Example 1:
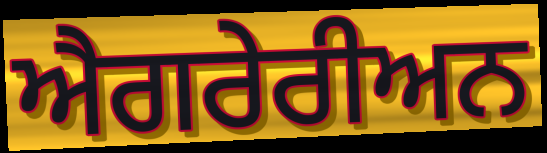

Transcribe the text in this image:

ਐਗਰੇਰੀਅਨ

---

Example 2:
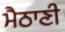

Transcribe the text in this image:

ਮੈਠਾਣੀ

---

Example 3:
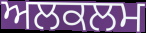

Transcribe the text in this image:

ਅਲਕਲਮ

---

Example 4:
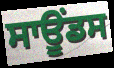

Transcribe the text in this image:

ਸਾਊਂਡਸ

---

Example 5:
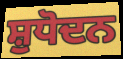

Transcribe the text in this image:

ਸ਼ੁਧੋਦਨ